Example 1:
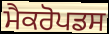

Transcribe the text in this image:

ਮੈਕਰੋਪਡਸ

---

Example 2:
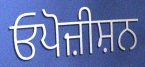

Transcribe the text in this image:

ਓਪੋਜ਼ੀਸ਼ਨ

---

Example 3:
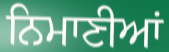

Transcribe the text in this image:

ਨਿਮਾਣੀਆਂ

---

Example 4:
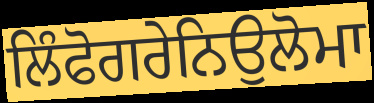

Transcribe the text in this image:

ਲਿੰਫੋਗਰੇਨਿਉਲੋਮਾ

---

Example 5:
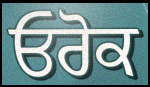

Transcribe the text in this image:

ਓਰੋਕ